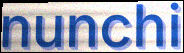
nunchi